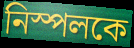
নিস্পলকে